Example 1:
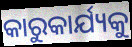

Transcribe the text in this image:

କାରୁକାର୍ଯ୍ୟକୁ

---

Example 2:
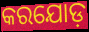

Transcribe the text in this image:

କରଯୋଡ଼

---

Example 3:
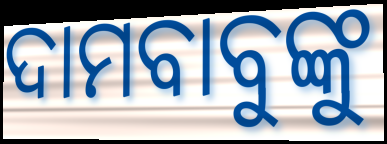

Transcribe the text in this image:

ଦାମବାବୁଙ୍କୁ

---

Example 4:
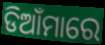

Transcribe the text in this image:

ଡିଆଁମାରେ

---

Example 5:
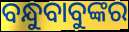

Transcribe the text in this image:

ବନ୍ଧୁବାବୁଙ୍କର